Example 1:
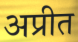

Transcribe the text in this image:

अप्रीत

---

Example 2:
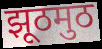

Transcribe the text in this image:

झूठमुठ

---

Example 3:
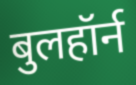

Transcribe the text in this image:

बुलहॉर्न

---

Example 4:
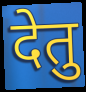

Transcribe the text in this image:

देतु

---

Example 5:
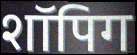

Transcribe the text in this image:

शॉपिग